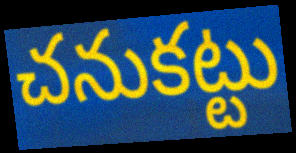
చనుకట్టు